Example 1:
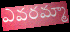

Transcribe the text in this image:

ఎవరమ్మా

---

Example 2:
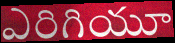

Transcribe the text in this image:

ఎరిగియూ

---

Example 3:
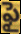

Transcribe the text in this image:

ఫై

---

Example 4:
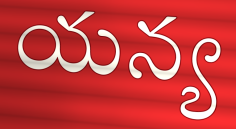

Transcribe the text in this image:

యన్య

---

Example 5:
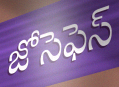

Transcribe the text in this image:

జోసెఫెస్